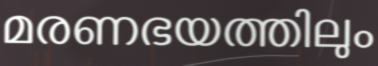
മരണഭയത്തിലും